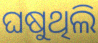
ଘଷୁଥିଲି